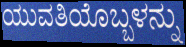
ಯುವತಿಯೊಬ್ಬಳನ್ನು